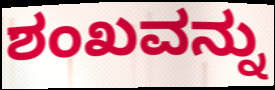
ಶಂಖವನ್ನು